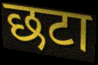
छटा